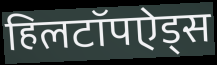
हिलटॉपऐड्स